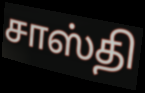
சாஸ்தி